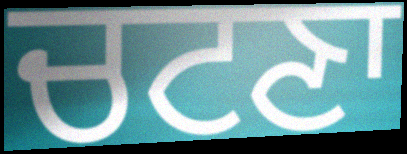
ਚਟਣਾ